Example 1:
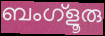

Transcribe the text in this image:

ബംഗ്ളൂരു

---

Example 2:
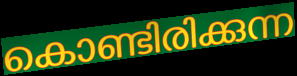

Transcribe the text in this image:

കൊണ്ടിരിക്കുന്ന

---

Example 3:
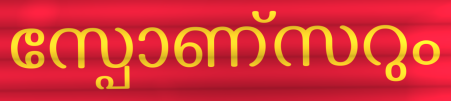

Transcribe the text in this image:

സ്പോണ്സറും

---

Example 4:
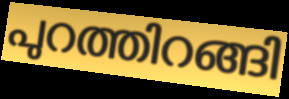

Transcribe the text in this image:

പുറത്തിറങ്ങി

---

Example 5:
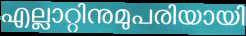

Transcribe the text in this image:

എല്ലാറ്റിനുമുപരിയായി